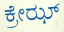
ಕ್ರೇಝ್